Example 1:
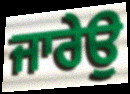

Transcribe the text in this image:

ਜਾਰੇਉ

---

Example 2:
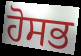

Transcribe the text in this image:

ਹੋਸਭ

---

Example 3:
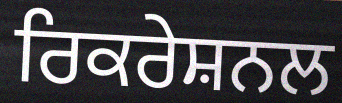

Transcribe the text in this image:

ਰਿਕਰੇਸ਼ਨਲ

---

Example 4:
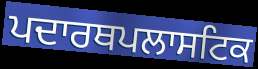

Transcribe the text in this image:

ਪਦਾਰਥਪਲਾਸਟਿਕ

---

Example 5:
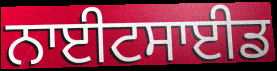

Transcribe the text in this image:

ਨਾਈਟਸਾਈਡ